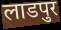
लाडपुर